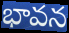
భావన